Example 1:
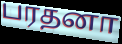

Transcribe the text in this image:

பரதனா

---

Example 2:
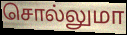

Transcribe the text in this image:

சொல்லுமா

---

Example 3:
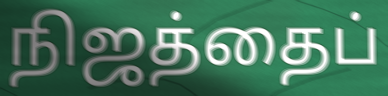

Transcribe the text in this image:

நிஜத்தைப்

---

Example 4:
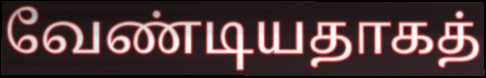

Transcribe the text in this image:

வேண்டியதாகத்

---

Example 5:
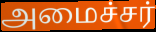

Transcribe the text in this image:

அமைச்சர்